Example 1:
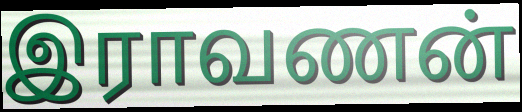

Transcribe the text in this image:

இராவணன்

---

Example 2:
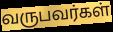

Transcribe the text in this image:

வருபவர்கள்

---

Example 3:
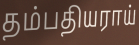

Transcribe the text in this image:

தம்பதியராய்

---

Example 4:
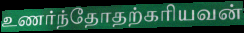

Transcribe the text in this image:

உணர்ந்தோதற்கரியவன்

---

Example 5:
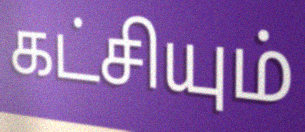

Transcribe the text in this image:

கட்சியும்